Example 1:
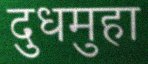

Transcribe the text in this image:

दुधमुहा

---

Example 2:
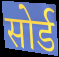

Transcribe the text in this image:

सोर्ड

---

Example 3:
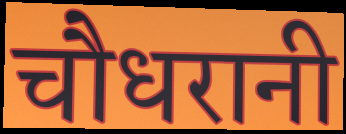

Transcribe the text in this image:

चौधरानी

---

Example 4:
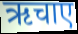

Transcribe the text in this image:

ऋचाए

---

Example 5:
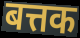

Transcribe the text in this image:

बत्तक